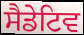
ਸੈਡੇਟਿਵ